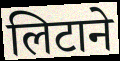
लिटाने